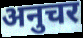
अनुचर